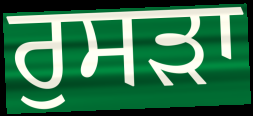
ਰੁਸੜਾ